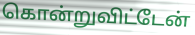
கொன்றுவிட்டேன்